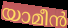
യാമീൻ